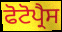
ਫੋਟੋਪ੍ਰੈਸ